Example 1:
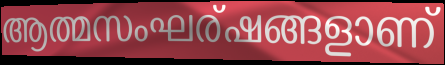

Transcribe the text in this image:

ആത്മസംഘര്ഷങ്ങളാണ്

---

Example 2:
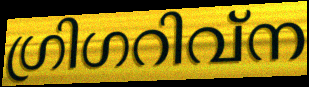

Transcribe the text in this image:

ഗ്രിഗറിവ്ന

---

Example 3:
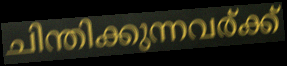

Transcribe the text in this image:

ചിന്തിക്കുന്നവര്ക്ക്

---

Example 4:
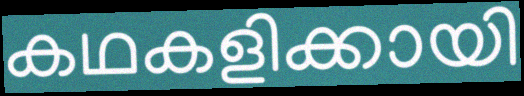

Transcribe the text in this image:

കഥകളിക്കായി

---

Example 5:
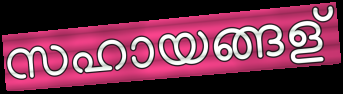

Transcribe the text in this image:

സഹായങ്ങള്